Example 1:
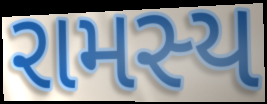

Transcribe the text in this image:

રામસ્ય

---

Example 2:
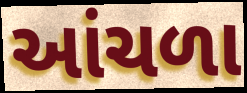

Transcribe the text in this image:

આંચળા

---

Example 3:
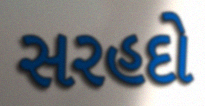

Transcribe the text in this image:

સરહદો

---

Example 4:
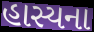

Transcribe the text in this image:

હાસ્યના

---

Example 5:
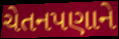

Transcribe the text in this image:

ચેતનપણાને